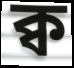
ক্ব